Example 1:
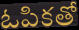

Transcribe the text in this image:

ఓపికతో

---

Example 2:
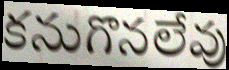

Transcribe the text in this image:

కనుగొనలేవు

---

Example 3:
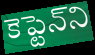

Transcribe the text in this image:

కెప్టెన్‌ని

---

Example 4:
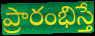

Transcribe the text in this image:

ప్రారంభిస్తే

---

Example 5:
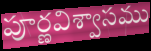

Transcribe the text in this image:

పూర్ణవిశ్వాసము